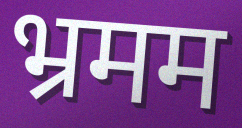
भ्रमम